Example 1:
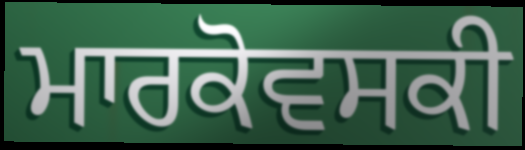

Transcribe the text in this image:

ਮਾਰਕੋਵਸਕੀ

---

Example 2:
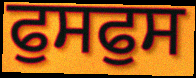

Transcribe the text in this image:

ਫੁਸਫੁਸ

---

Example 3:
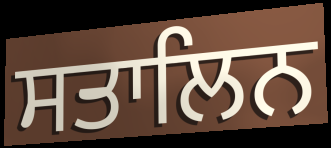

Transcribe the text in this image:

ਸਤਾਲਿਨ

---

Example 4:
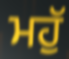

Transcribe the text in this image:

ਮਹੁੱ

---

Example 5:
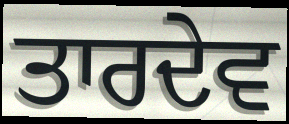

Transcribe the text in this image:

ਤਾਰਦੇਵ